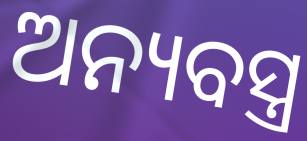
ଅନ୍ୟବସ୍ତ୍ର